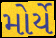
મોર્યે